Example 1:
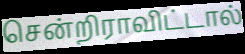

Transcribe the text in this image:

சென்றிராவிட்டால்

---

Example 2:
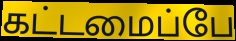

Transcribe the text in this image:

கட்டமைப்பே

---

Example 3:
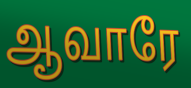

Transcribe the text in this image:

ஆவாரே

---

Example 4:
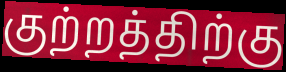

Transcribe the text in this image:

குற்றத்திற்கு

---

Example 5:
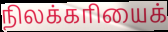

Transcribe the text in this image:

நிலக்கரியைக்